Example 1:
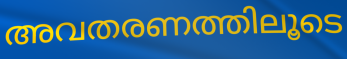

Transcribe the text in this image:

അവതരണത്തിലൂടെ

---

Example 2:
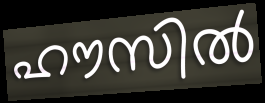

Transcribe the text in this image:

ഹൗസിൽ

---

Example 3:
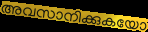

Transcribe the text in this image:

അവസാനിക്കുകയോ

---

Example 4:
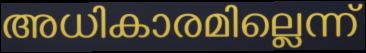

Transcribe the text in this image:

അധികാരമില്ലെന്ന്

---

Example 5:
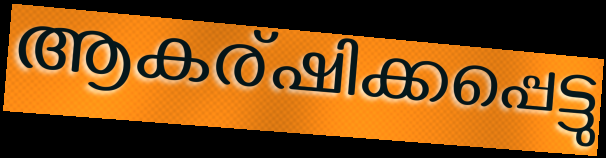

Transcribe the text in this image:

ആകര്ഷിക്കപ്പെട്ടു